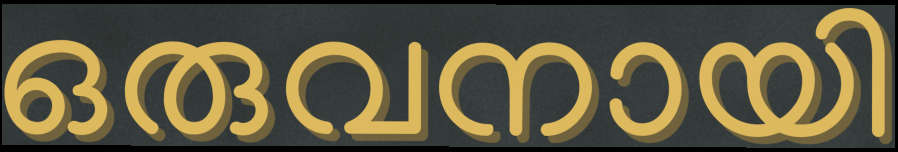
ഒരുവനായി